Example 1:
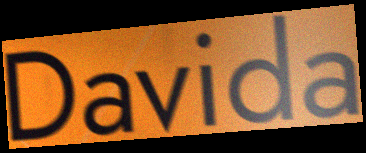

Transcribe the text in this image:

Davida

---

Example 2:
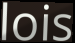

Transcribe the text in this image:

lois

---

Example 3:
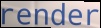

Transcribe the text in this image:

render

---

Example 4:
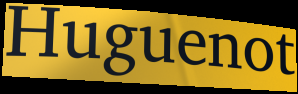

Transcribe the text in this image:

Huguenot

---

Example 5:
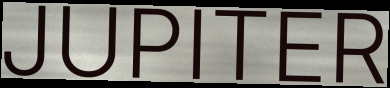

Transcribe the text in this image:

JUPITER